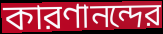
কারণানন্দের